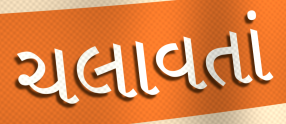
ચલાવતાં